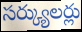
సర్క్యులర్లు